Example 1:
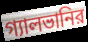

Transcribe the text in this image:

গ্যালভানির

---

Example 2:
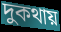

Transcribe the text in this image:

দুকথায়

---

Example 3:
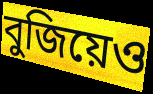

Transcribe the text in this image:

বুজিয়েও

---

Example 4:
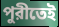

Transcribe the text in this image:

পুরীতেই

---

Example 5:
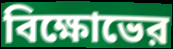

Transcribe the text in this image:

বিক্ষোভের